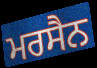
ਮਰਸੈਨ